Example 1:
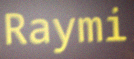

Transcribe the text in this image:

Raymi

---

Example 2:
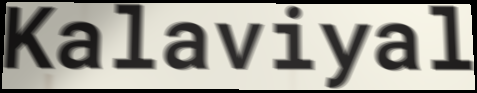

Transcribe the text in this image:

Kalaviyal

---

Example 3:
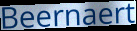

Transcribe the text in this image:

Beernaert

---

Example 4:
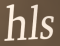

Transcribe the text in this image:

hls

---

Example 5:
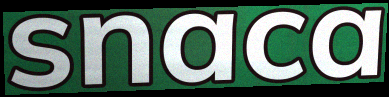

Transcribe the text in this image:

snaca